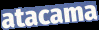
atacama